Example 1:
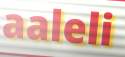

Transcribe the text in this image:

aaleli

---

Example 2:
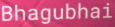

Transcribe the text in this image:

Bhagubhai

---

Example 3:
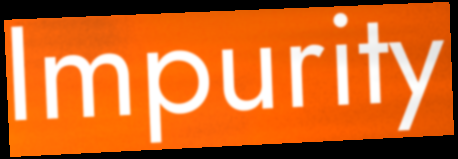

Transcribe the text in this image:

Impurity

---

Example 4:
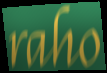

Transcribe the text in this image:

raho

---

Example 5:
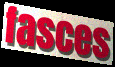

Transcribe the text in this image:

fasces